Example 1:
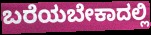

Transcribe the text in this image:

ಬರೆಯಬೇಕಾದಲ್ಲಿ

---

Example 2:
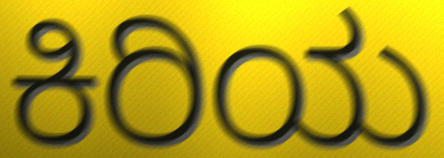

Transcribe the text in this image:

ಕಿರಿಯ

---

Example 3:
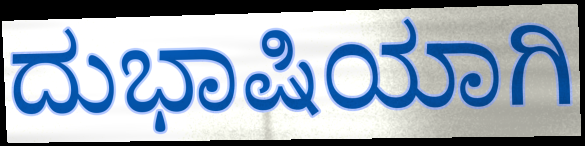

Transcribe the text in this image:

ದುಭಾಷಿಯಾಗಿ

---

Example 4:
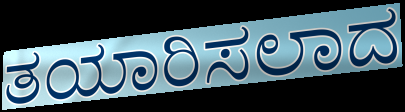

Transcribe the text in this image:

ತಯಾರಿಸಲಾದ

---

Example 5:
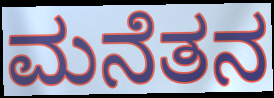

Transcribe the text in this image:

ಮನೆತನ